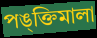
পঙ্‌ক্তিমালা